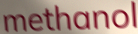
methanol